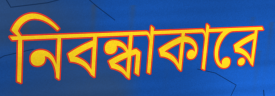
নিবন্ধাকারে